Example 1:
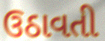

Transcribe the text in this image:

ઉઠાવતી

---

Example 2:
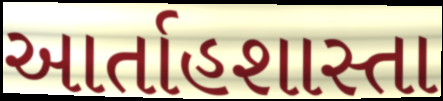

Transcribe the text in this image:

આર્તાહશાસ્તા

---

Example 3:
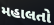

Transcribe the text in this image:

મહાલતો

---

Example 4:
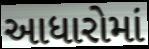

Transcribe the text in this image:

આધારોમાં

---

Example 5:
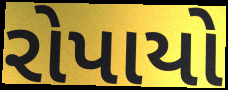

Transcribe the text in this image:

રોપાયો